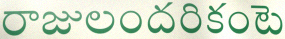
రాజులందరికంటె